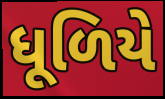
ધૂળિયે